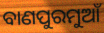
ବାଣପୁରମୁଆଁ